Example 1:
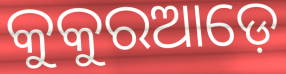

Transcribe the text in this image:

କୁକୁରଆଡ଼େ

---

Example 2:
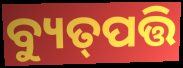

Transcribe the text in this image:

ବ୍ୟୁତ୍‌ପତ୍ତି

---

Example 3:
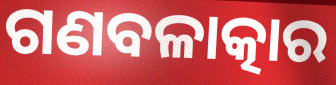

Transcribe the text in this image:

ଗଣବଳାତ୍କାର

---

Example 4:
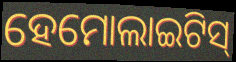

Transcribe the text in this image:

ହେମୋଲାଇଟିସ୍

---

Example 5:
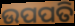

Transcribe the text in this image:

ଉପପତି